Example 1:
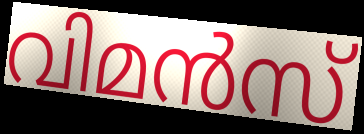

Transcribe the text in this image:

വിമൻസ്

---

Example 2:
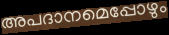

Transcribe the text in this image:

അപദാനമെപ്പോഴും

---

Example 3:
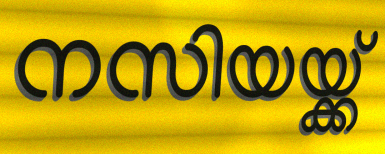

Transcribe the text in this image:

നസിയയ്ക്ക്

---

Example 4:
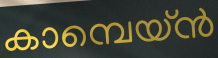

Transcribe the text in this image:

കാമ്പെയ്ൻ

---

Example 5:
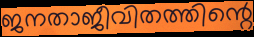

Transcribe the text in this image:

ജനതാജീവിതത്തിന്റെ